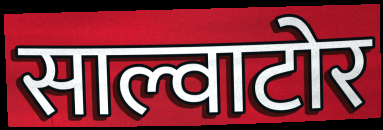
साल्वाटोर